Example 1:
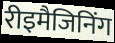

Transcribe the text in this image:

रीइमैजिनिंग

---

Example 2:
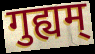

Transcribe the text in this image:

गुह्यम्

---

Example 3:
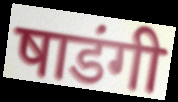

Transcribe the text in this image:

षाडंगी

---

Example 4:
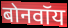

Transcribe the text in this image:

बोनवॉय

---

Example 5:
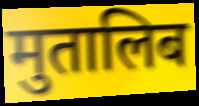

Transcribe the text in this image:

मुतालिब